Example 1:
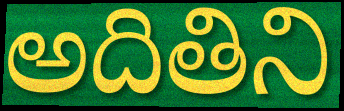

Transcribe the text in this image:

అదితిని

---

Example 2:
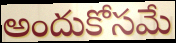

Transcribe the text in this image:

అందుకోసమే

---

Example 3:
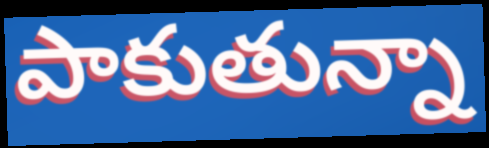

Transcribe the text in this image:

పాకుతున్నా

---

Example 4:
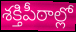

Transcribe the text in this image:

శక్తిపీఠాల్లో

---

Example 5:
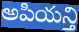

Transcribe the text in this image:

అపియన్తి